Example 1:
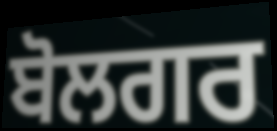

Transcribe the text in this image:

ਬੋਲਗਰ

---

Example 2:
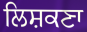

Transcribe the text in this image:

ਲਿਸ਼ਕਣਾ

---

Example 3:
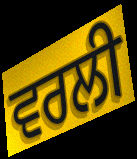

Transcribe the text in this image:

ਵਰਲੀ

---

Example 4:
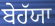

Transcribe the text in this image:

ਬੇਹੱਯਾ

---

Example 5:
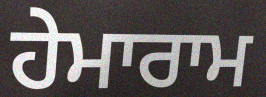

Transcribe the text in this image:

ਹੇਮਾਰਾਮ